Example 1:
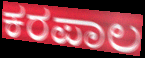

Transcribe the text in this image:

ಕರಪಾಲ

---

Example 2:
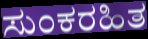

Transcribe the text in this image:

ಸುಂಕರಹಿತ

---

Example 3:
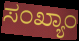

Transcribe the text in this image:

ಸಂಖ್ಯಾಂ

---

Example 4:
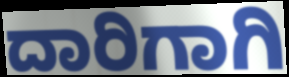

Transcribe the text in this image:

ದಾರಿಗಾಗಿ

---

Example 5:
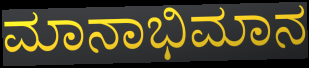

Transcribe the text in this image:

ಮಾನಾಭಿಮಾನ